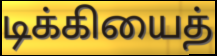
டிக்கியைத்